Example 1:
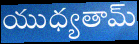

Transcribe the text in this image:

యుధ్యతామ్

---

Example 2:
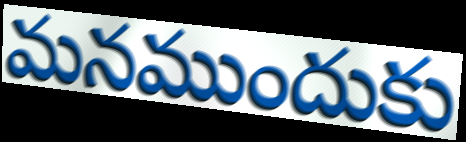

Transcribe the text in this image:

మనముందుకు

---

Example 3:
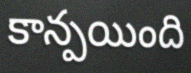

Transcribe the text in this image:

కాన్పయింది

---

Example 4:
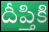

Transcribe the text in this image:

దీప్తికి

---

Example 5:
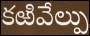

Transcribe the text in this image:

కఱివేల్పు